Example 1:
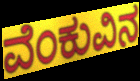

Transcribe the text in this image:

ವೆಂಕುವಿನ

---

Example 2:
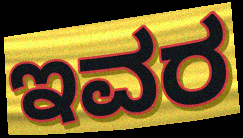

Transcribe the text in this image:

ಇವರ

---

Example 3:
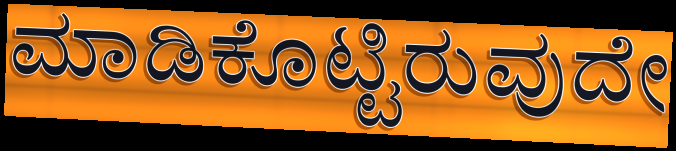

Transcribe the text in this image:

ಮಾಡಿಕೊಟ್ಟಿರುವುದೇ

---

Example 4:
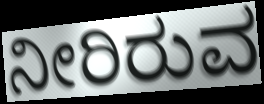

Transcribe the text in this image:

ನೀರಿರುವ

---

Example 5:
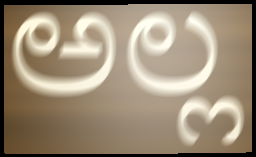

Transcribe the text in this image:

ಅಲ್ಲ